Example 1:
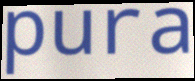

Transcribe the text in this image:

pura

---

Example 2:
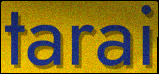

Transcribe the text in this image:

tarai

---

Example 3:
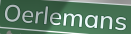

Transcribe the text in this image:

Oerlemans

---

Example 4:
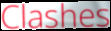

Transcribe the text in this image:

Clashes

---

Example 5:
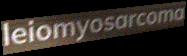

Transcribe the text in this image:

leiomyosarcoma